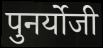
पुनर्योजी